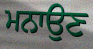
ਮਨਾਉਣ